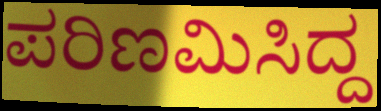
ಪರಿಣಮಿಸಿದ್ದ